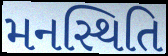
મનસ્થિતિ